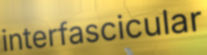
interfascicular